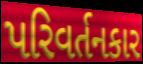
પરિવર્તનકાર